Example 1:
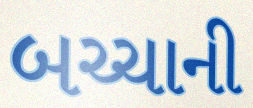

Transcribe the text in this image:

બચ્ચાની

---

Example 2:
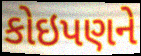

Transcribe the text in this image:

કોઇપણને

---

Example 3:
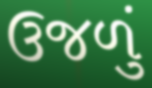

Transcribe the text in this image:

ઉજળું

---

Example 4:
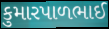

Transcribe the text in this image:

કુમારપાળભાઈ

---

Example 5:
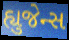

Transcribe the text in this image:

હ્યુજેન્સ